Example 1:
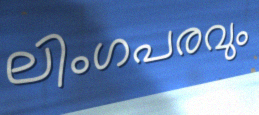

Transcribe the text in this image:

ലിംഗപരവും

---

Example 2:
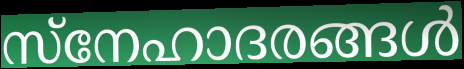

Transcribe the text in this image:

സ്നേഹാദരങ്ങൾ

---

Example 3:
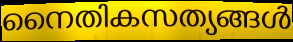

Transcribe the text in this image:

നൈതികസത്യങ്ങൾ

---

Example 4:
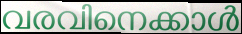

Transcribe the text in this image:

വരവിനെക്കാൾ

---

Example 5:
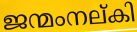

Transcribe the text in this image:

ജന്മംനല്കി